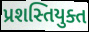
પ્રશસ્તિયુક્ત